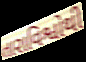
તારાવિશ્વોથી